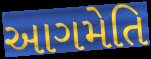
આગમેતિ